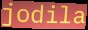
jodila